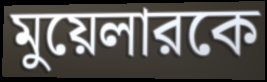
মুয়েলারকে